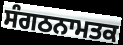
ਸੰਗਠਨਾਮਤਕ